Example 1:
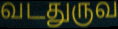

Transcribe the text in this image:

வடதுருவ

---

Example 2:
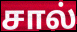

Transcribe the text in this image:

சால்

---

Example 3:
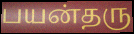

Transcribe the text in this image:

பயன்தரு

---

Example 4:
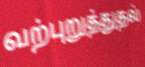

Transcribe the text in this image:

வற்புறுத்துதல்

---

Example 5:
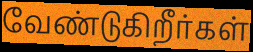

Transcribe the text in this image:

வேண்டுகிறீர்கள்